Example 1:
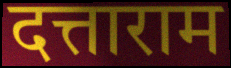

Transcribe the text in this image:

दत्ताराम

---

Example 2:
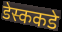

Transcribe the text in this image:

डेस्ककडे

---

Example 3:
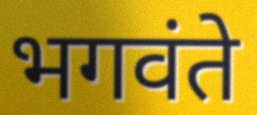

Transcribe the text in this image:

भगवंते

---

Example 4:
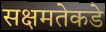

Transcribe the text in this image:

सक्षमतेकडे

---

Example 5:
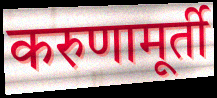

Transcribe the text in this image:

करुणामूर्ती